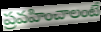
ప్రవహించాలంటే